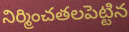
నిర్మించతలపెట్టిన